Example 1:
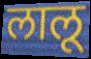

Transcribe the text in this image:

लालू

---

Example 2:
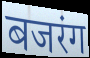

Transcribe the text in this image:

बजरंग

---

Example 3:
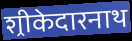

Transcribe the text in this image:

श्रीकेदारनाथ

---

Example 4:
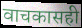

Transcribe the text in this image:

वाचकासही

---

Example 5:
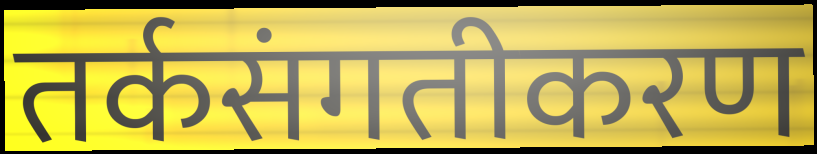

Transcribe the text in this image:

तर्कसंगतीकरण